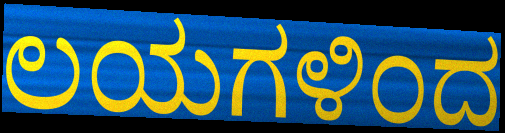
ಲಯಗಳಿಂದ